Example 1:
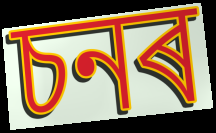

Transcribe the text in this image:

চনৰ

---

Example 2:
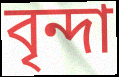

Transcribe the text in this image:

বৃন্দা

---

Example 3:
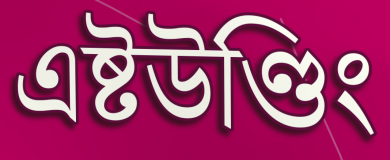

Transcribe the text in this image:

এষ্টউণ্ডিং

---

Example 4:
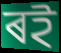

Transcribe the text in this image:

ৰই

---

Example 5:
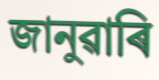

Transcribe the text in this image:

জানুৱাৰি